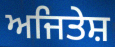
ਅਜਿਤੇਸ਼